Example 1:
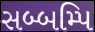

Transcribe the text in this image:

સબ્બમ્પિ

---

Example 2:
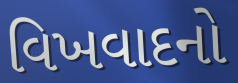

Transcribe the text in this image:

વિખવાદનો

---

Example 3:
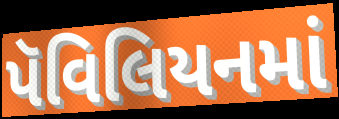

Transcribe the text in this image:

પૅવિલિયનમાં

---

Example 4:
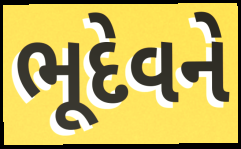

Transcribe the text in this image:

ભૂદેવને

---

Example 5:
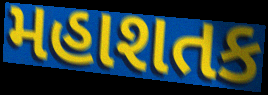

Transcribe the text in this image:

મહાશતક